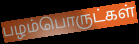
பழம்பொருட்கள்